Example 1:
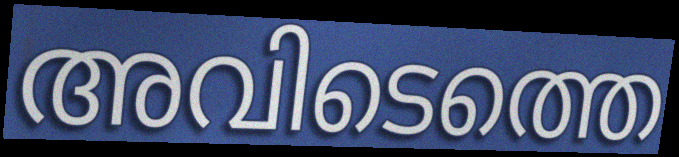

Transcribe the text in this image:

അവിടെത്തെ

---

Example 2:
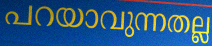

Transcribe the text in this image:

പറയാവുന്നതല്ല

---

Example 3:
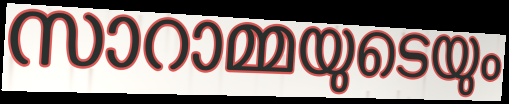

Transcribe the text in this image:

സാറാമ്മയുടെയും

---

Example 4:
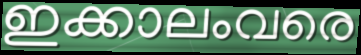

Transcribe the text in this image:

ഇക്കാലംവരെ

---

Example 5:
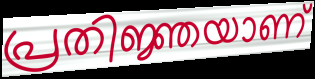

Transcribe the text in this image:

പ്രതിജ്ഞയാണ്